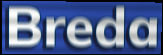
Breda